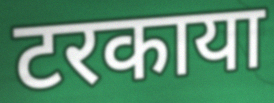
टरकाया